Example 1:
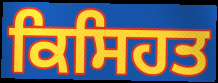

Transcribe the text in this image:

ਕਿਸਿਹਤ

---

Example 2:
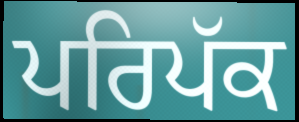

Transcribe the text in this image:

ਪਰਿਪੱਕ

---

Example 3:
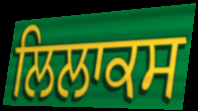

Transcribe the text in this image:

ਲਿਲਾਕਸ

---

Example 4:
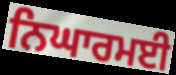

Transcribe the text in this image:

ਨਿਘਾਰਮਈ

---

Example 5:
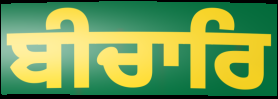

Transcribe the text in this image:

ਬੀਚਾਰਿ